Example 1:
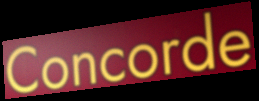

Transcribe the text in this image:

Concorde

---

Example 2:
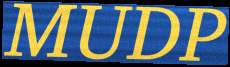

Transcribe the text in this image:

MUDP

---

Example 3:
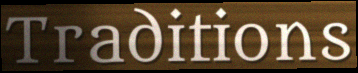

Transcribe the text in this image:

Traditions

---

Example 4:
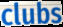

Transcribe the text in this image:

clubs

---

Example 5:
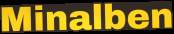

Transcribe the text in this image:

Minalben